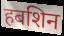
हबशिन